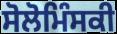
ਸੋਲੋਮਿੰਸਕੀ